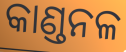
କାଣ୍ଡନଳ